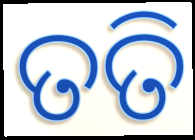
ତତି